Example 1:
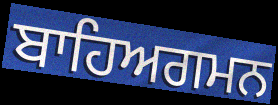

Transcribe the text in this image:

ਬਾਹਿਅਗਮਨ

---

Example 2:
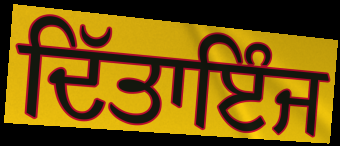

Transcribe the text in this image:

ਦਿੱਤਾਇੰਜ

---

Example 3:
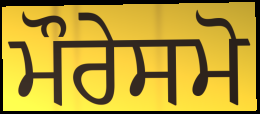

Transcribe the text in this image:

ਮੌਰੇਸਮੋ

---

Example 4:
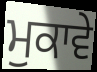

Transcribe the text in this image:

ਮੁਕਾਵੇ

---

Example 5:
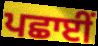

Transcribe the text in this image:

ਪਛਾਈਂ